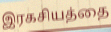
இரகசியத்தை